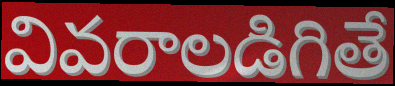
వివరాలడిగితే